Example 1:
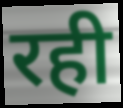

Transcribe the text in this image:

रही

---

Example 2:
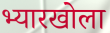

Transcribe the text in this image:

भ्यारखोला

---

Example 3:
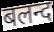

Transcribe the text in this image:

बलन्द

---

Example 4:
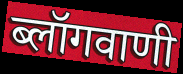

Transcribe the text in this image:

ब्लॉगवाणी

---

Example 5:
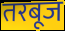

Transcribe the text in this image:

तरबूज